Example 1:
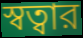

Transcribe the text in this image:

স্বত্বার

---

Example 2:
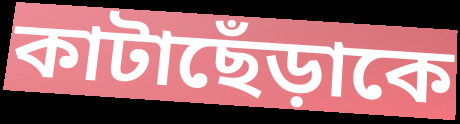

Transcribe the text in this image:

কাটাছেঁড়াকে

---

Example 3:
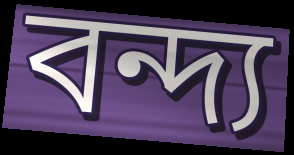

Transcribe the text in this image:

বন্দ্য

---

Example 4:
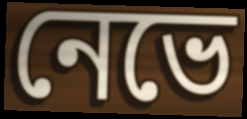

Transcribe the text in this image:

নেভে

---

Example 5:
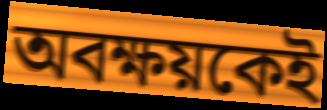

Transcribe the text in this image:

অবক্ষয়কেই